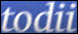
todii